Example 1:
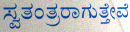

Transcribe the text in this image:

ಸ್ವತಂತ್ರರಾಗುತ್ತೇವೆ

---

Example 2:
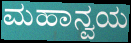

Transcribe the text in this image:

ಮಹಾನ್ವಯ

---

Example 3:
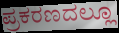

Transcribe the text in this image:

ಪ್ರಕರಣದಲ್ಲೂ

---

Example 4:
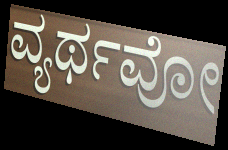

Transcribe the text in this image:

ವ್ಯರ್ಥವೋ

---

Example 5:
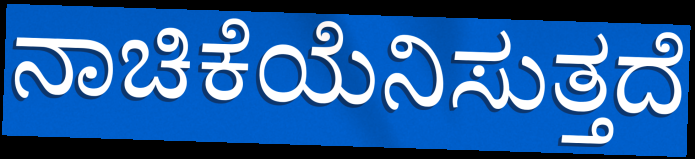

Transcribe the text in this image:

ನಾಚಿಕೆಯೆನಿಸುತ್ತದೆ